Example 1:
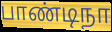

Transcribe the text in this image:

பாண்டிநா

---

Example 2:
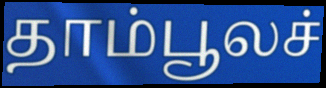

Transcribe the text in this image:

தாம்பூலச்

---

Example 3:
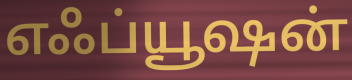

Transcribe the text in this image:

எஃப்யூஷன்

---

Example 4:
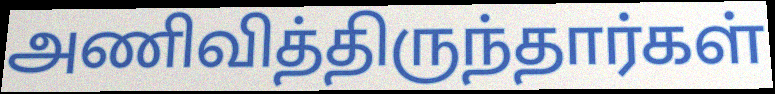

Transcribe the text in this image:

அணிவித்திருந்தார்கள்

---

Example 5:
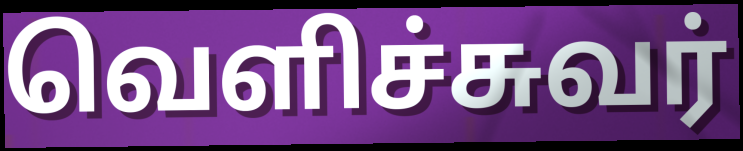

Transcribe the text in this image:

வெளிச்சுவர்